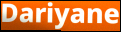
Dariyane